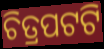
ଚିତ୍ରପଟଟି